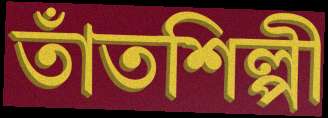
তাঁতশিল্পী